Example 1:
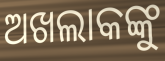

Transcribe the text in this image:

ଅଖଲାକଙ୍କୁ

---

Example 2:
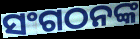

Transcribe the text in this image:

ସଂଗଠନଙ୍କ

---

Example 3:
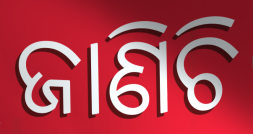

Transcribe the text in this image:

ଜାଣିଚି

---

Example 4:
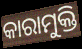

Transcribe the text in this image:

କାରାମୁକ୍ତି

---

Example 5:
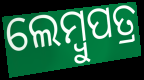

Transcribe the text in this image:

ଲେମ୍ବୁପତ୍ର